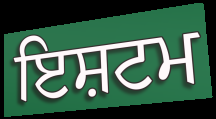
ਇਸ਼ਟਮ